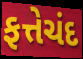
ફત્તેચંદ